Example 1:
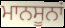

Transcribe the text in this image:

ਮਾਨਸੂਨਾਂ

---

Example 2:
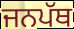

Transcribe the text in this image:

ਜਨਪੱਥ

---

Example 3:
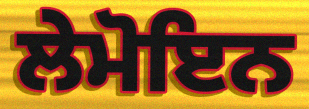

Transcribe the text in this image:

ਲੇਮੋਇਨ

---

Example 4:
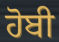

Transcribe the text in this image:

ਹੋਬੀ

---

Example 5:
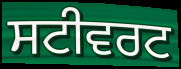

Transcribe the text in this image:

ਸਟੀਵਰਟ